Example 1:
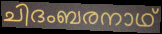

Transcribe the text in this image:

ചിദംബരനാഥ്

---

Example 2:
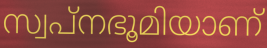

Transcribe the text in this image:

സ്വപ്നഭൂമിയാണ്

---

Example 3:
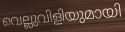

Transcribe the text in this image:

വെല്ലുവിളിയുമായി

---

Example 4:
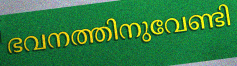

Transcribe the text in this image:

ഭവനത്തിനുവേണ്ടി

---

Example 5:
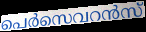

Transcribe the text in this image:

പെർസെവറൻസ്